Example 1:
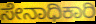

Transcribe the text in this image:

ಸೇನಾಧಿಕಾರಿ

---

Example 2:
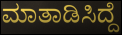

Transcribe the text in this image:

ಮಾತಾಡಿಸಿದ್ದೆ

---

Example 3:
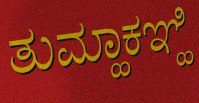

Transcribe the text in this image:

ತುಮ್ಹಾಕಞ್ಹಿ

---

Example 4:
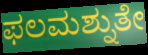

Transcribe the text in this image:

ಫಲಮಶ್ನುತೇ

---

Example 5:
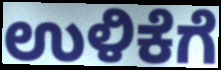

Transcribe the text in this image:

ಉಳಿಕೆಗೆ